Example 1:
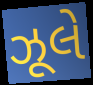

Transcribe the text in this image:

ઝૂલે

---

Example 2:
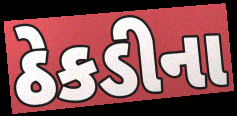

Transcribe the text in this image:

ઠેકડીના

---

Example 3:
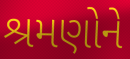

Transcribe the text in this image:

શ્રમણોને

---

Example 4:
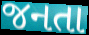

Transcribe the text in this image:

જનતા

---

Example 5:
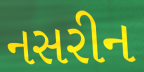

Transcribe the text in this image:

નસરીન